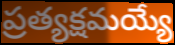
ప్రత్యక్షమయ్యే